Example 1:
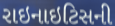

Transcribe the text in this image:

રાઇનાઇટિસની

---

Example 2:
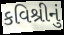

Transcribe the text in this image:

કવિશ્રીનું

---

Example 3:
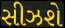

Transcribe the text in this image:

સીઝશે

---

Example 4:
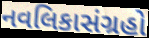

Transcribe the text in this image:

નવલિકાસંગ્રહો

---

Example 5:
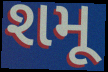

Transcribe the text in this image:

શમૂ